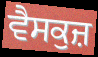
ਵੈਸਕੁਜ਼